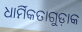
ଧାର୍ମିକତାଗୁଡ଼ାକ